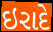
ઇરાદે